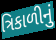
ત્રિકાળીનું